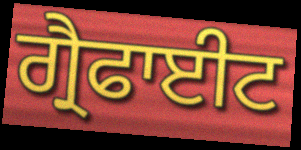
ਗ੍ਰੈਫਾਈਟ